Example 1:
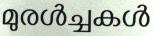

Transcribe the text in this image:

മുരൾച്ചകൾ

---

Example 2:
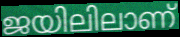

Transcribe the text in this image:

ജയിലിലാണ്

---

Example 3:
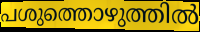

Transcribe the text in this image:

പശുത്തൊഴുത്തിൽ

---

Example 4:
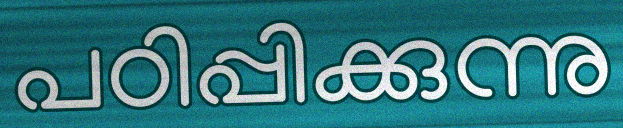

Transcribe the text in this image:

പഠിപ്പിക്കുന്നു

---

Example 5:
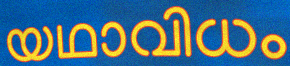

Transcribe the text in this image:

യഥാവിധം